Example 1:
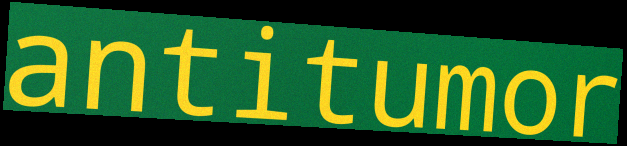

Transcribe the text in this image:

antitumor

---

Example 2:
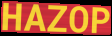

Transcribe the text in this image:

HAZOP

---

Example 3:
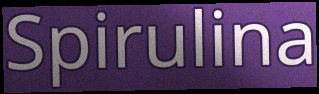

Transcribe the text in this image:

Spirulina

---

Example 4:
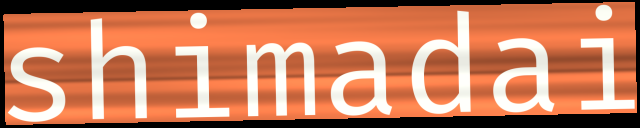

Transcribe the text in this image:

shimadai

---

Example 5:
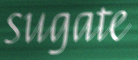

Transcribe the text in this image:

sugate